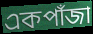
একপাঁজা